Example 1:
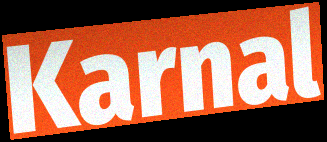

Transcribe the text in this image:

Karnal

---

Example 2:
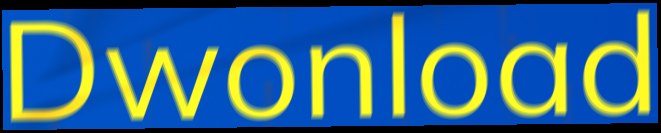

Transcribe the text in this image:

Dwonload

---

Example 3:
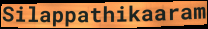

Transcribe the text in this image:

Silappathikaaram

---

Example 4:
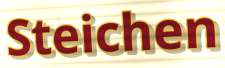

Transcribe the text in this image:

Steichen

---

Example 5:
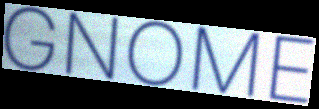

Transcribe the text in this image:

GNOME